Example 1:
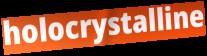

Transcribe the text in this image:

holocrystalline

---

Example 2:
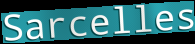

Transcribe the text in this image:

Sarcelles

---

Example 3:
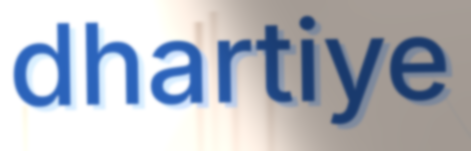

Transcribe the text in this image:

dhartiye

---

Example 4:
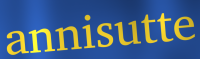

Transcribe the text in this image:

annisutte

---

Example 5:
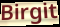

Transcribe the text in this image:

Birgit